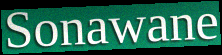
Sonawane